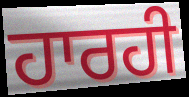
ਹਾਰਹੀ